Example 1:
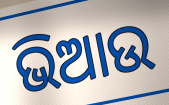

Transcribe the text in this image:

ଭିଆଉ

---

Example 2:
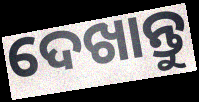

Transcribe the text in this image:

ଦେଖାନ୍ତୁ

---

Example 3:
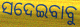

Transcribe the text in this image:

ସଦେଇବାବୁ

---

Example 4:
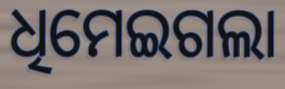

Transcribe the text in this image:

ଧିମେଇଗଲା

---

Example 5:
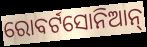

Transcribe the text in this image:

ରୋବର୍ଟସୋନିଆନ୍